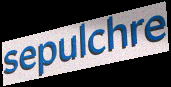
sepulchre